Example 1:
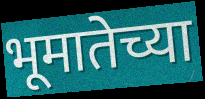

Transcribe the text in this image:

भूमातेच्या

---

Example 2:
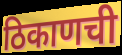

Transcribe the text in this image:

ठिकाणची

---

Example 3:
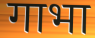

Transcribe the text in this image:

गाभा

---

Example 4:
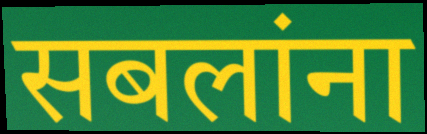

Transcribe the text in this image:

सबलांना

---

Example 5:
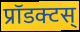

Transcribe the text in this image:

प्रॉडक्टस्